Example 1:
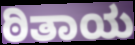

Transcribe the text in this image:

ಠಿತಾಯ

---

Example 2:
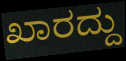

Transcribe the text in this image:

ಖಾರದ್ದು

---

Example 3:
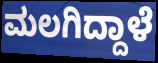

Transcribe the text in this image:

ಮಲಗಿದ್ದಾಳೆ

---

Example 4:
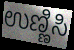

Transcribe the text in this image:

ಉಣ್ಣಿಸಿ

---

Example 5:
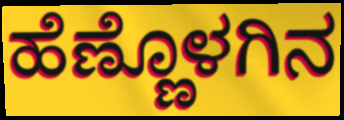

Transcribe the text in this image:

ಹೆಣ್ಣೊಳಗಿನ